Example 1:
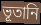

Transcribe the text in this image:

ভূতানি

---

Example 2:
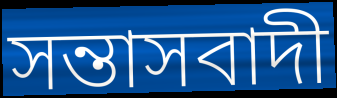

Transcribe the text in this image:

সন্তাসবাদী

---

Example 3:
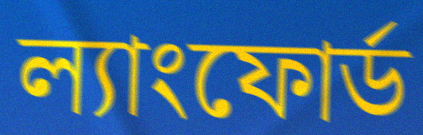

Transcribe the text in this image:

ল্যাংফোর্ড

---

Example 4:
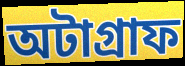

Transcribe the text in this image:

অটাগ্রাফ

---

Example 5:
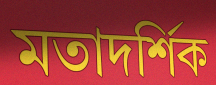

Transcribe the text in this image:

মতাদর্শিক